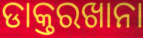
ଡାକ୍ତରଖାନା